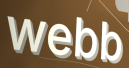
webb